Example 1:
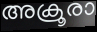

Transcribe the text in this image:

അക്രൂരാ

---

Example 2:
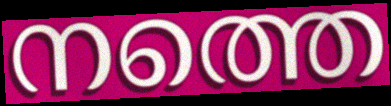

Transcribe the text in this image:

നത്തെ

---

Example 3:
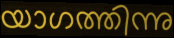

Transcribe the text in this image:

യാഗത്തിന്നു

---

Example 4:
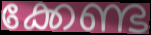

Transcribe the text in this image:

ക്കേണ്ട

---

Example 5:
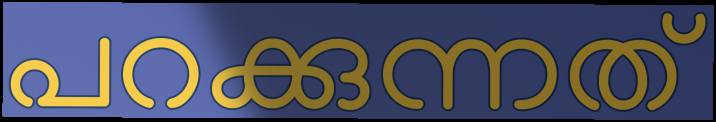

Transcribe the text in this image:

പറക്കുന്നത്